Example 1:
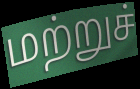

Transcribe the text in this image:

மற்றுச்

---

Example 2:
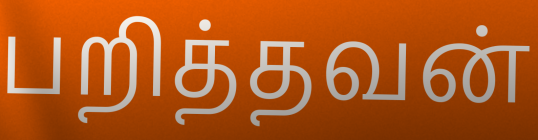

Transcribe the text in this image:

பறித்தவன்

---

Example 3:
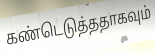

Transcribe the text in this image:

கண்டெடுத்ததாகவும்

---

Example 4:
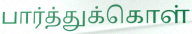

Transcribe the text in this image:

பார்த்துக்கொள்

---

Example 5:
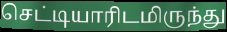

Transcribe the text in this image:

செட்டியாரிடமிருந்து